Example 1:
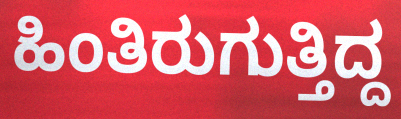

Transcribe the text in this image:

ಹಿಂತಿರುಗುತ್ತಿದ್ದ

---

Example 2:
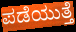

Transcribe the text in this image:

ಪಡೆಯುತ್ತೆ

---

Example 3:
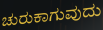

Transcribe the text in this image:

ಚುರುಕಾಗುವುದು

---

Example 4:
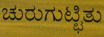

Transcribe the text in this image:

ಚುರುಗುಟ್ಟಿತು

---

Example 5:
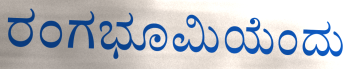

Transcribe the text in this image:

ರಂಗಭೂಮಿಯೆಂದು